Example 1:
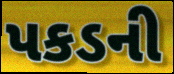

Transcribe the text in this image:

પકડની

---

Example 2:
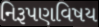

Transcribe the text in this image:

નિરૂપણવિષય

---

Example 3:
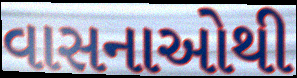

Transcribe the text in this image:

વાસનાઓથી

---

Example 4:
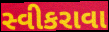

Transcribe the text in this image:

સ્વીકરાવા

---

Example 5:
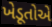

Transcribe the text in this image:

ખેડૂતોએ